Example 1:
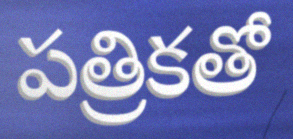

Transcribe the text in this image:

పత్రికతో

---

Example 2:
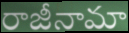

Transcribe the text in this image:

రాజీనామా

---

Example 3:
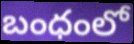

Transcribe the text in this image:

బంధంలో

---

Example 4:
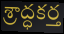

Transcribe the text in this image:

శ్రాద్ధకర్త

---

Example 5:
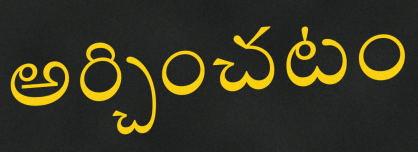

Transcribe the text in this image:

అర్చించటం